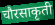
चौरसाकृती